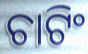
ଚାଟିଂ